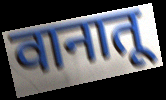
वानातू